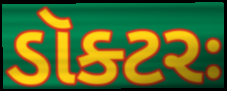
ડૉક્ટરઃ